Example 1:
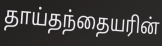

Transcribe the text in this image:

தாய்தந்தையரின்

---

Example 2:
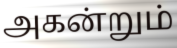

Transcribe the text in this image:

அகன்றும்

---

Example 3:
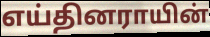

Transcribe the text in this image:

எய்தினராயின்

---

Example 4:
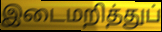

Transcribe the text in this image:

இடைமறித்துப்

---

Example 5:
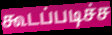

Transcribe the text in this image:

கூடப்படிச்ச